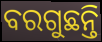
ବରଗୁଛନ୍ତି